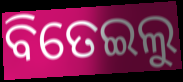
ବିତେଇଲୁ